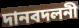
দানবদলনী